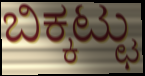
ಬಿಕ್ಕಟ್ಟು